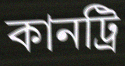
কানট্রি